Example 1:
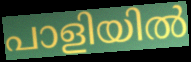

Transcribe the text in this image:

പാളിയിൽ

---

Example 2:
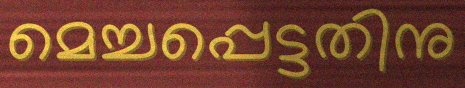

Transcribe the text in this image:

മെച്ചപ്പെട്ടതിനു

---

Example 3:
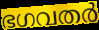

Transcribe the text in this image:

ഭഗവതർ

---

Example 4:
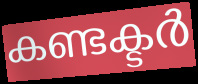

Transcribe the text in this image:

കണ്ടക്ടർ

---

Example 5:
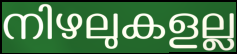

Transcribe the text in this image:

നിഴലുകളല്ല